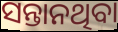
ସନ୍ତାନଥିବା